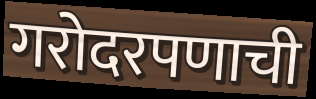
गरोदरपणाची